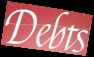
Debts